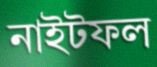
নাইটফল